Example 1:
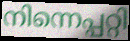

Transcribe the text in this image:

നിന്നെപ്പറ്റി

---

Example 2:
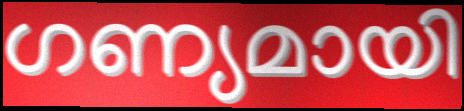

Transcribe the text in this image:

ഗണ്യമായി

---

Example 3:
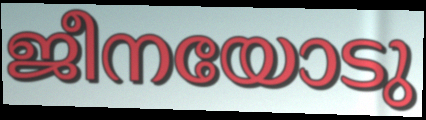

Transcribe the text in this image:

ജീനയോടു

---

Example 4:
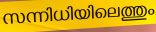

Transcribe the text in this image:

സന്നിധിയിലെത്തും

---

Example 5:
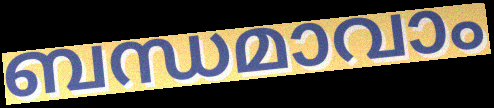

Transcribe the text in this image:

ബന്ധമാവാം